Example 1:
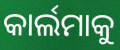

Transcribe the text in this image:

କାର୍ଲମାକୁ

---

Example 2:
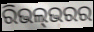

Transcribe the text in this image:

ରିଭଲ୍‍ଭରର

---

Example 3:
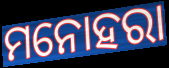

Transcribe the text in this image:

ମନୋହରା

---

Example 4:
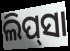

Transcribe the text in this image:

ଲିପ୍‌ସା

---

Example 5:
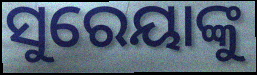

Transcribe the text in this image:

ସୁରେୟାଙ୍କୁ